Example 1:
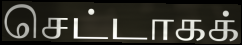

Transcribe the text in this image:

செட்டாகக்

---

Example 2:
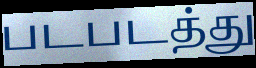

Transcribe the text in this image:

படபடத்து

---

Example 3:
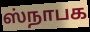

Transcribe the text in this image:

ஸ்நாபக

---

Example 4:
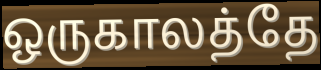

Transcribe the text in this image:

ஒருகாலத்தே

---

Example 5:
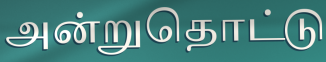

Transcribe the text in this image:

அன்றுதொட்டு